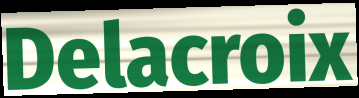
Delacroix